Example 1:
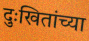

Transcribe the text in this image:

दुःखितांच्या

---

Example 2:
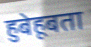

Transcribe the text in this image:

हुबेहूबता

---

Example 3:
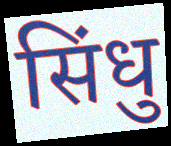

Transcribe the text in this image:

सिंधु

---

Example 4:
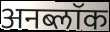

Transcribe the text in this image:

अनब्लॉक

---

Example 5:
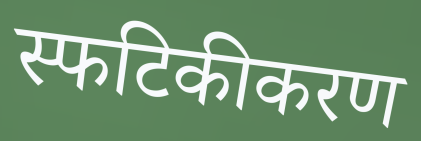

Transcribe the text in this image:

स्फटिकीकरण